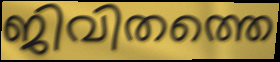
ജിവിതത്തെ